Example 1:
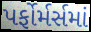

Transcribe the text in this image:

પર્ફોર્મર્સમાં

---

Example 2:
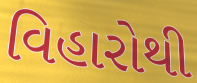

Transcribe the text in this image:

વિહારોથી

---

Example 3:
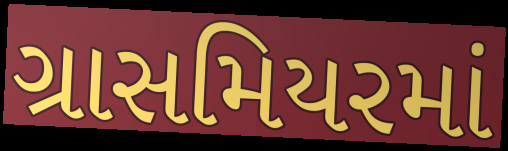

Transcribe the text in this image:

ગ્રાસમિયરમાં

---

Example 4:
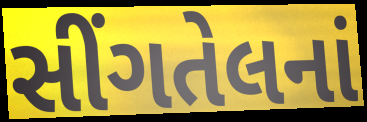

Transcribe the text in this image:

સીંગતેલનાં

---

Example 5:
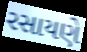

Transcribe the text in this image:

રસાયણે